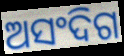
ଅସଂଦିଗ